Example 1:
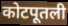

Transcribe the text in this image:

कोटपूतली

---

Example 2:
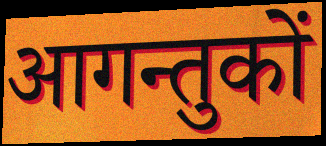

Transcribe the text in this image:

आगन्तुकों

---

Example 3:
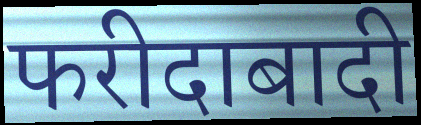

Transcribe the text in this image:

फरीदाबादी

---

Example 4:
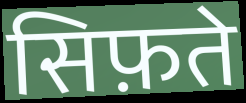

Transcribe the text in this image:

सिफ़ते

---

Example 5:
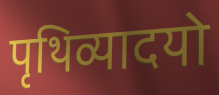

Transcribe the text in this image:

पृथिव्यादयो